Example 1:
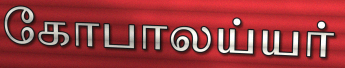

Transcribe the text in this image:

கோபாலய்யர்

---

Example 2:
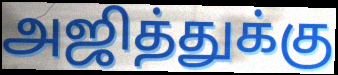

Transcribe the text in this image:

அஜித்துக்கு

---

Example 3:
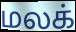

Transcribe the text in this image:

மலக்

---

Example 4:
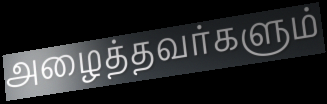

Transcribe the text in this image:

அழைத்தவர்களும்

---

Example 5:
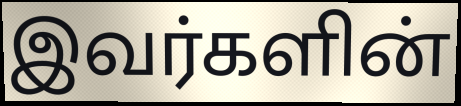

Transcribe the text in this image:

இவர்களின்